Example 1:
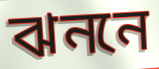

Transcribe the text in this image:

ঝননে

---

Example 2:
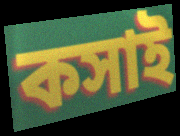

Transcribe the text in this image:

কসাই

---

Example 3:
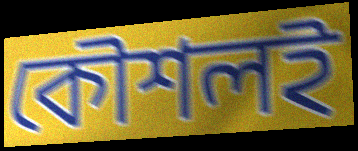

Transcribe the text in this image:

কৌশলই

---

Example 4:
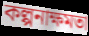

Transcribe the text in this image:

কল্পনাক্ষমতা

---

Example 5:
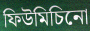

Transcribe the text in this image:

ফিউমিচিনো